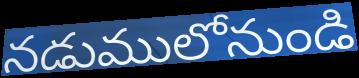
నడుములోనుండి